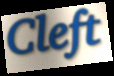
Cleft